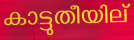
കാട്ടുതീയില്